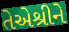
તેએશ્રીને